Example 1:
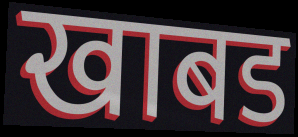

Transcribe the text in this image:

खाबड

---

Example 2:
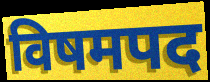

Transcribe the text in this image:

विषमपद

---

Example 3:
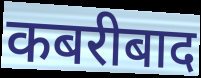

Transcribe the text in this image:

कबरीबाद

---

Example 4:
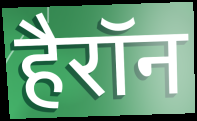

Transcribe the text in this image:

हैरॉन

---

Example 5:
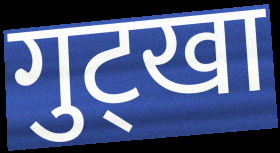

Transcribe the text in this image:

गुट्खा